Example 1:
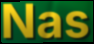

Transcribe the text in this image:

Nas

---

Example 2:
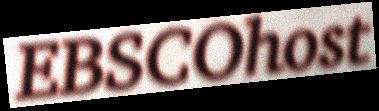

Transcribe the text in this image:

EBSCOhost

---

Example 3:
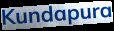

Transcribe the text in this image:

Kundapura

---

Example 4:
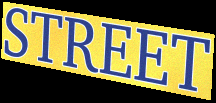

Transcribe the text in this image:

STREET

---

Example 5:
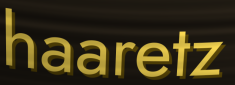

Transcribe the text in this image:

haaretz